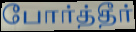
போர்த்தீர்